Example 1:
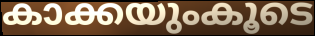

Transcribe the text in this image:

കാക്കയുംകൂടെ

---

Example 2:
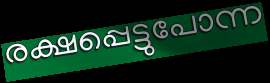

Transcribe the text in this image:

രക്ഷപ്പെട്ടുപോന്ന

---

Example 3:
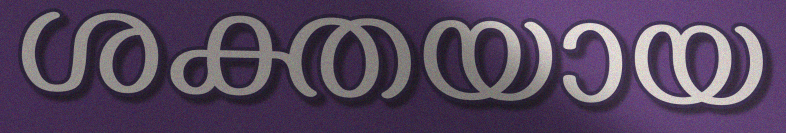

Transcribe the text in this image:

ശക്തയായ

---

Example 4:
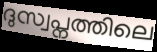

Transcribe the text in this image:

ദുസ്വപ്നത്തിലെ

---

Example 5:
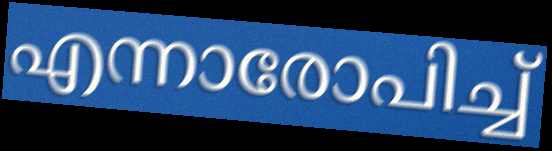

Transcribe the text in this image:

എന്നാരോപിച്ച്